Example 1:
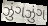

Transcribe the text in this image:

ઝુંગઝુંગ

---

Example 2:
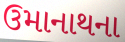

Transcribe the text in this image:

ઉમાનાથના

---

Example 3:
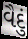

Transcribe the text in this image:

વૈદું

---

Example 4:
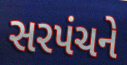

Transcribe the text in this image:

સરપંચને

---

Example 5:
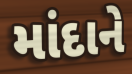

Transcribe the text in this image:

માંદાને